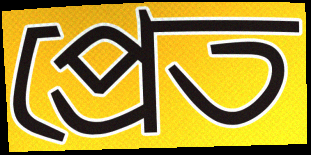
প্রেত